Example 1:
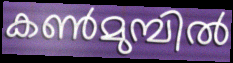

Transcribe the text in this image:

കൺമുമ്പിൽ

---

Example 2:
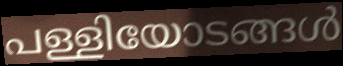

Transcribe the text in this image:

പള്ളിയോടങ്ങൾ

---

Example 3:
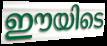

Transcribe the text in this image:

ഈയിടെ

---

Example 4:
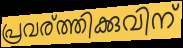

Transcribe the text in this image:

പ്രവര്ത്തിക്കുവിന്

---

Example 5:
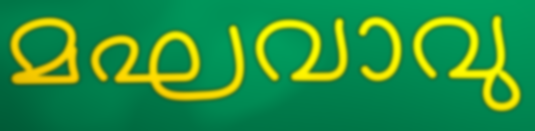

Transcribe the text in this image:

മഘവാവു